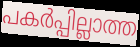
പകർപ്പില്ലാത്ത